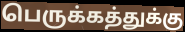
பெருக்கத்துக்கு